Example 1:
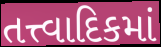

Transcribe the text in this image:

તત્ત્વાદિકમાં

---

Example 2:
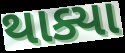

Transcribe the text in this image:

થાક્યા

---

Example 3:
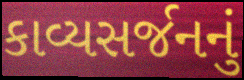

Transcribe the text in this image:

કાવ્યસર્જનનું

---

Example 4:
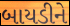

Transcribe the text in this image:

બાયડીને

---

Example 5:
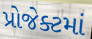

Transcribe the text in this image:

પ્રોજેક્ટમાં